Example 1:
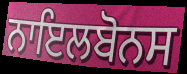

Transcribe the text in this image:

ਨਾਇਲਬੋਨਸ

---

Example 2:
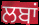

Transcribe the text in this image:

ਲਬਾਂ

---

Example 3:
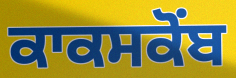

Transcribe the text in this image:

ਕਾਕਸਕੋਂਬ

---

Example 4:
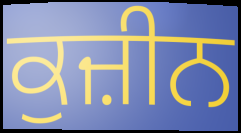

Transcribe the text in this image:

ਕੁਜ਼ੀਨ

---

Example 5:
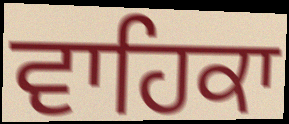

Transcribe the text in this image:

ਵਾਹਿਕਾ